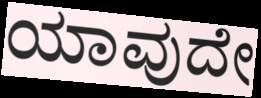
ಯಾವುದೇ